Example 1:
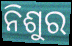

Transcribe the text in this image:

ନିଶୁର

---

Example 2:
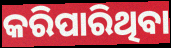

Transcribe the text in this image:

କରିପାରିଥିବା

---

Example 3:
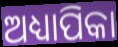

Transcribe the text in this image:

ଅଧ୍ୟାପିକା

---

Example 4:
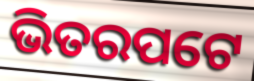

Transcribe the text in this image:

ଭିତରପଟେ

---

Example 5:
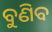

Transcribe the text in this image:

ବୁଣିବ